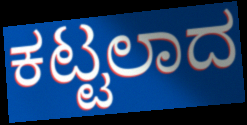
ಕಟ್ಟಲಾದ